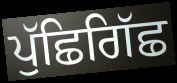
ਪੁੱਛਿਗਿੱਛ